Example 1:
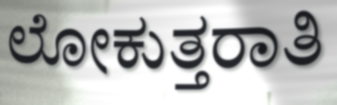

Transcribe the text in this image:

ಲೋಕುತ್ತರಾತಿ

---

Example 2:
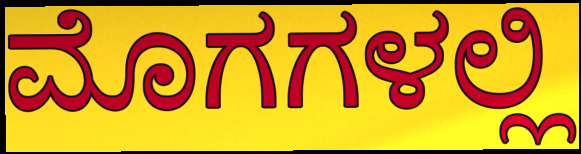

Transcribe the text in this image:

ಮೊಗಗಳಲ್ಲಿ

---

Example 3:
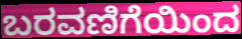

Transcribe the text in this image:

ಬರವಣಿಗೆಯಿಂದ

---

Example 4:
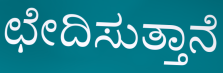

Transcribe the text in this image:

ಛೇದಿಸುತ್ತಾನೆ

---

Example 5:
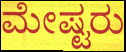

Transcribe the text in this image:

ಮೇಷ್ಟರು